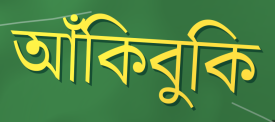
আঁকিবুকি